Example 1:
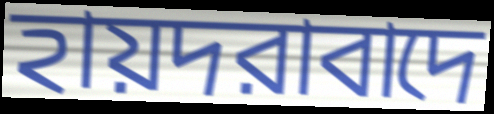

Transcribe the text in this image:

হায়দরাবাদে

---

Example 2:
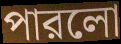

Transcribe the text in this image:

পারলো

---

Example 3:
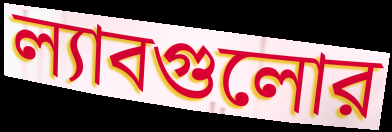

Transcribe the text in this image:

ল্যাবগুলোর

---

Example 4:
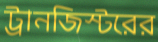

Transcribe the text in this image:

ট্রানজিস্টরের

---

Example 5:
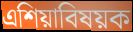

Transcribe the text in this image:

এশিয়াবিষয়ক